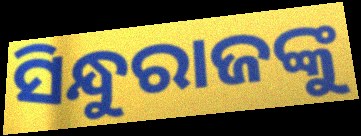
ସିନ୍ଧୁରାଜଙ୍କୁ